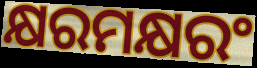
କ୍ଷରମକ୍ଷରଂ